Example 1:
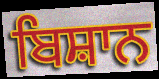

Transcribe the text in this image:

ਬਿਸ਼ਾਨ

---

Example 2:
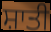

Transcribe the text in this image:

ਸ਼ਾਤੀ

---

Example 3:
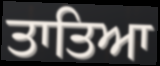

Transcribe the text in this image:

ਤਾਤਿਆ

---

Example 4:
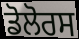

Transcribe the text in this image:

ਡੋਲੋਰਸ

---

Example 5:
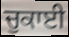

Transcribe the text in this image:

ਚੁਕਾਈ